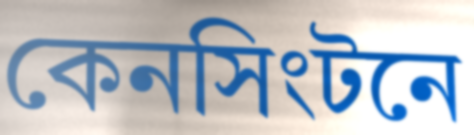
কেনসিংটনে